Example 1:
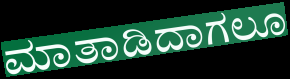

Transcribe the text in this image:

ಮಾತಾಡಿದಾಗಲೂ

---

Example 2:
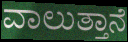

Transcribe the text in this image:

ವಾಲುತ್ತಾನೆ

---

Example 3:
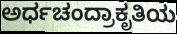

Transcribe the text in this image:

ಅರ್ಧಚಂದ್ರಾಕೃತಿಯ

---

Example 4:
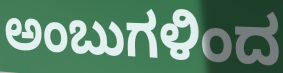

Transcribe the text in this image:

ಅಂಬುಗಳಿಂದ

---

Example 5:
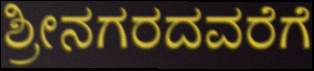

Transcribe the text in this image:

ಶ್ರೀನಗರದವರೆಗೆ